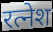
रत्नेश